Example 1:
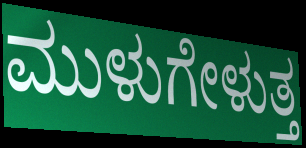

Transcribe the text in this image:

ಮುಳುಗೇಳುತ್ತ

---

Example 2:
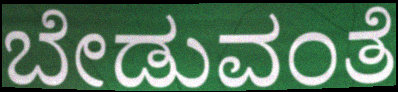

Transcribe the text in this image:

ಬೇಡುವಂತೆ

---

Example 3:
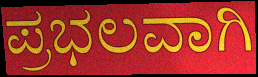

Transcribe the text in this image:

ಪ್ರಭಲವಾಗಿ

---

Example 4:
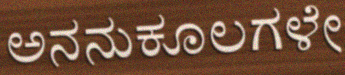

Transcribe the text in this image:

ಅನನುಕೂಲಗಳೇ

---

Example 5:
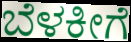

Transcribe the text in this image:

ಬೆಳಕೀಗೆ